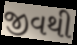
જીવથી